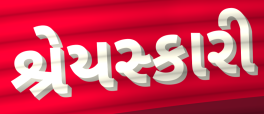
શ્રેયસ્કારી